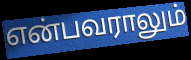
என்பவராலும்